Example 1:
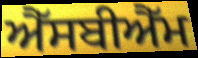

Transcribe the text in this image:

ਐੱਸਬੀਐੱਮ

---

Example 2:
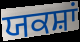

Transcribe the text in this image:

ਯਕਸ਼ਾਂ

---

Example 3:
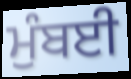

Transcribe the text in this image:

ਮੁੰਬਈ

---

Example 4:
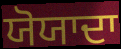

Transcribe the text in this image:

ਯੋਯਾਦਾ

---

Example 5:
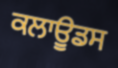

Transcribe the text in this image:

ਕਲਾਊਡਸ